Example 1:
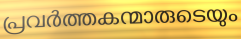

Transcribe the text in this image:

പ്രവർത്തകന്മാരുടെയും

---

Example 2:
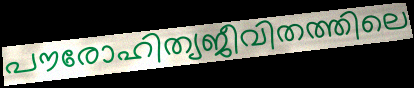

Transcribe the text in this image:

പൗരോഹിത്യജീവിതത്തിലെ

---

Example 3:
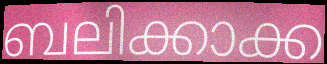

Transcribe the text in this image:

ബലിക്കാക്ക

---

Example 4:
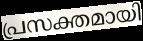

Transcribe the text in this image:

പ്രസക്തമായി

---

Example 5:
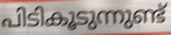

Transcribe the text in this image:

പിടികൂടുന്നുണ്ട്